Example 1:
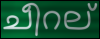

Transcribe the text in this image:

ചീറല്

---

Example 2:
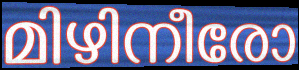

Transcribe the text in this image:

മിഴിനീരോ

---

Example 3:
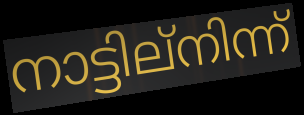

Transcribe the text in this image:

നാട്ടില്നിന്ന്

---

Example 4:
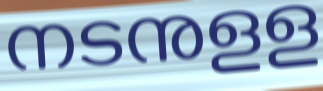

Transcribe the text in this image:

നടനുളള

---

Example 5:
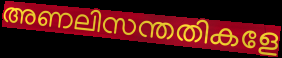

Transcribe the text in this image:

അണലിസന്തതികളേ